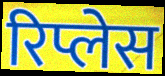
रिप्लेस